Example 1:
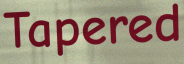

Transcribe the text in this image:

Tapered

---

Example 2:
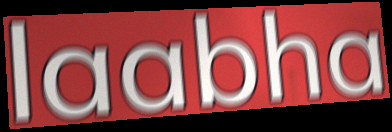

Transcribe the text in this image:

laabha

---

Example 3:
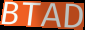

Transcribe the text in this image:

BTAD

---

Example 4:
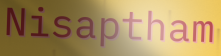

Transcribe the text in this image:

Nisaptham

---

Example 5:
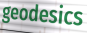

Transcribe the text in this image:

geodesics